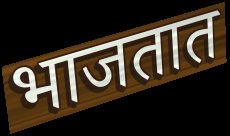
भाजतात